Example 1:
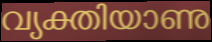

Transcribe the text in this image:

വ്യക്തിയാണു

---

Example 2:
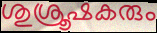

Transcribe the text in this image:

ശുശ്രൂഷകരും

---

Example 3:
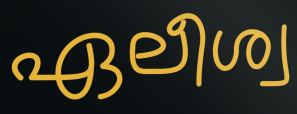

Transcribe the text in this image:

ഏലീശ്വ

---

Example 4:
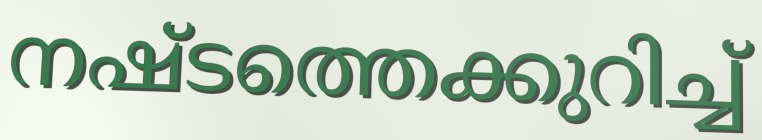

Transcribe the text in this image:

നഷ്ടത്തെക്കുറിച്ച്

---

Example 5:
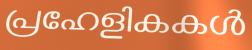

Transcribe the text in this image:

പ്രഹേളികകൾ